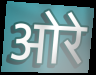
ओरे